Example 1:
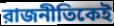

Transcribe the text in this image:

রাজনীতিকেই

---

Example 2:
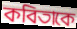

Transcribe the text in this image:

কবিতাকে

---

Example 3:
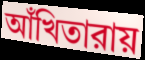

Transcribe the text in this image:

আঁখিতারায়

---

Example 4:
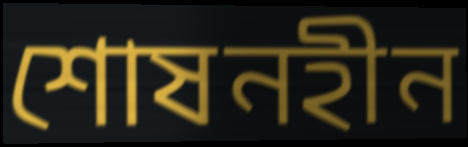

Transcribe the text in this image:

শোষনহীন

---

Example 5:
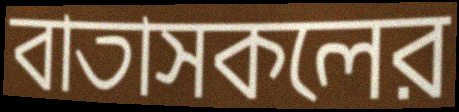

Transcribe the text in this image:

বাতাসকলের